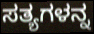
ಸತ್ಯಗಳನ್ನ